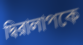
দ্বিরালাপকে